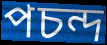
পচন্দ